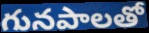
గునపాలతో